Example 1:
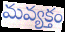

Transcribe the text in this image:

మవ్యక్తం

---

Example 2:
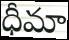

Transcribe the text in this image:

ధీమా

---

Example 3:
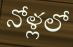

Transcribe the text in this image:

నోళ్లలో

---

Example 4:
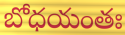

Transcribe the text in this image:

బోధయంతః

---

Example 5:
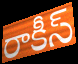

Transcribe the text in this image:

రాకీస్